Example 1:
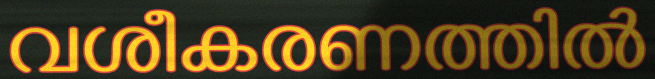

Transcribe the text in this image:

വശീകരണത്തിൽ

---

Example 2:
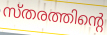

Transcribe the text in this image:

സ്തരത്തിന്റെ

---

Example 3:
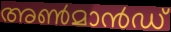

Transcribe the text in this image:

അൺമാൻഡ്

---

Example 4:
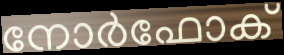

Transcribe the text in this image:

നോർഫോക്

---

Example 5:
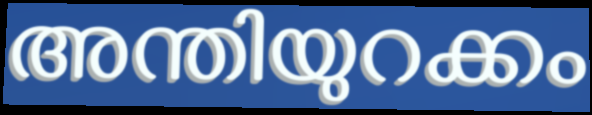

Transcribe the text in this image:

അന്തിയുറക്കം